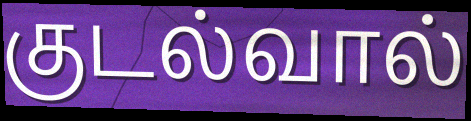
குடல்வால்